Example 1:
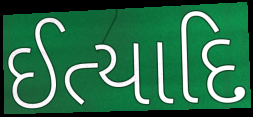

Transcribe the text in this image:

ઈત્યાદિ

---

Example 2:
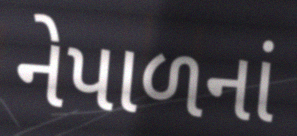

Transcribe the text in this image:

નેપાળનાં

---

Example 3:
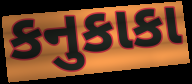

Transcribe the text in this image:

કનુકાકા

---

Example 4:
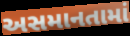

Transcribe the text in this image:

અસમાનતામાં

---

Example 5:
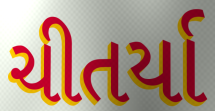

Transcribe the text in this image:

ચીતર્યા